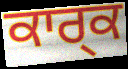
ਕਾਰ੍ਕ